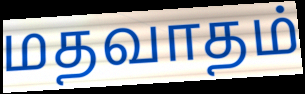
மதவாதம்